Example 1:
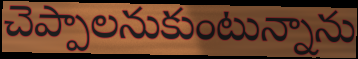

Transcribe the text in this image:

చెప్పాలనుకుంటున్నాను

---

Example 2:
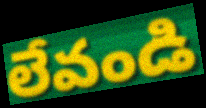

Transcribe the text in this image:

లేవండి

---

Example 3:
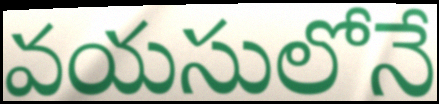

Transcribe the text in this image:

వయసులోనే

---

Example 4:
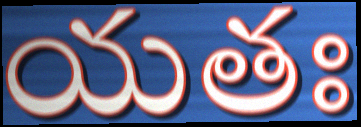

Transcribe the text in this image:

యతః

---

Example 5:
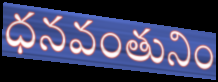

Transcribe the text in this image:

ధనవంతునిం